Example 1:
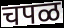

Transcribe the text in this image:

चपळ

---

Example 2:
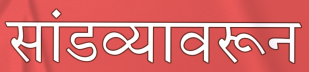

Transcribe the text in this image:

सांडव्यावरून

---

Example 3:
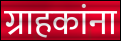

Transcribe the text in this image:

ग्राहकांना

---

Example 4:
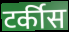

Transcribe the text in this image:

टर्कीस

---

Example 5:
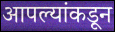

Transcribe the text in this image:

आपल्यांकडून